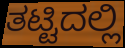
ತಟ್ಟಿದಲ್ಲಿ